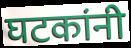
घटकांनी